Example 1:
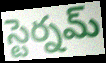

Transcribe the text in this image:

స్టెర్నమ్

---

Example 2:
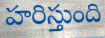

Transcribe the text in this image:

హరిస్తుంది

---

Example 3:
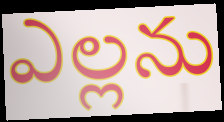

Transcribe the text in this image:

ఎల్లను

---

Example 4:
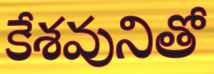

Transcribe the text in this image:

కేశవునితో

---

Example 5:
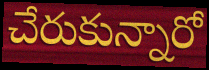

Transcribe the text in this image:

చేరుకున్నారో